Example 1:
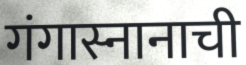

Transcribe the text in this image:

गंगास्नानाची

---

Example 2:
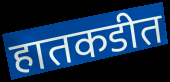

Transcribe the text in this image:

हातकडीत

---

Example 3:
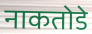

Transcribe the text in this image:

नाकतोडे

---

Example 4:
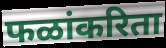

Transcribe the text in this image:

फळांकरिता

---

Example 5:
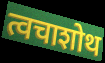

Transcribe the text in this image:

त्वचाशोथ